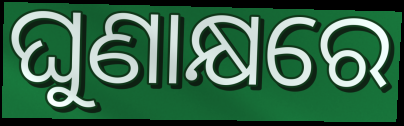
ଘୁଣାକ୍ଷରେ